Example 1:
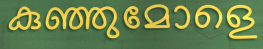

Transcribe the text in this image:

കുഞ്ഞുമോളെ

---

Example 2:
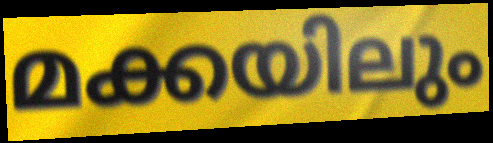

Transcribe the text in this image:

മക്കയിലും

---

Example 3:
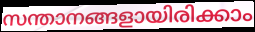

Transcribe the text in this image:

സന്താനങ്ങളായിരിക്കാം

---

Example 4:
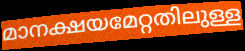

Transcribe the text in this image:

മാനക്ഷയമേറ്റതിലുള്ള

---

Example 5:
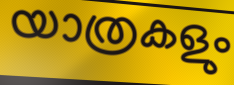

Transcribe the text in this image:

യാത്രകളും